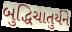
બુદ્ધિચાતુર્યને